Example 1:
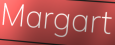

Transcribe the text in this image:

Margart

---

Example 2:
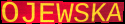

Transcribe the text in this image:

OJEWSKA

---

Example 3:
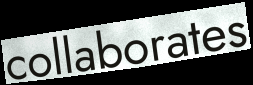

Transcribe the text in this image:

collaborates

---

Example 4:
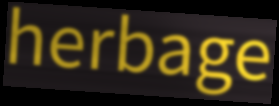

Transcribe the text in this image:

herbage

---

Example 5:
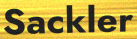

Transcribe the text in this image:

Sackler